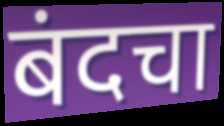
बंदचा